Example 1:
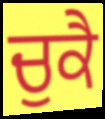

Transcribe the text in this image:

ਚੁਕੈ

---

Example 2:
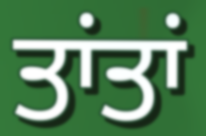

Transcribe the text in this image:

ਤਾਂਤਾਂ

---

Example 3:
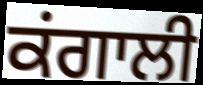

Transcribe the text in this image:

ਕਂਗਾਲੀ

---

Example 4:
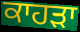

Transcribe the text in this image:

ਕਾਹੜਾ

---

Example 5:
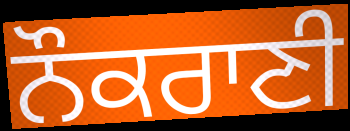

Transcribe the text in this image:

ਨੌਕਰਾਣੀ